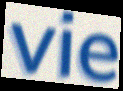
vie